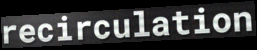
recirculation